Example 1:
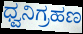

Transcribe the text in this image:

ಧ್ವನಿಗ್ರಹಣ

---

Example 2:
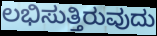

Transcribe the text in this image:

ಲಭಿಸುತ್ತಿರುವುದು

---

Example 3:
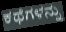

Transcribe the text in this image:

ಕಥೆಗಳನ್ನು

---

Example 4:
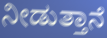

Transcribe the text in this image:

ನೀಡುತ್ತಾನೆ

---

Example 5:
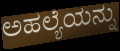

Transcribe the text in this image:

ಅಹಲ್ಯೆಯನ್ನು